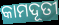
କାମଦୂତୀ